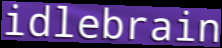
idlebrain